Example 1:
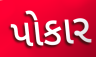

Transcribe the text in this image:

પોકાર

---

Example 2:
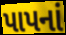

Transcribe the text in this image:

પાપનાં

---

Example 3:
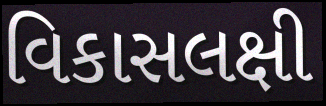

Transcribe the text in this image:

વિકાસલક્ષી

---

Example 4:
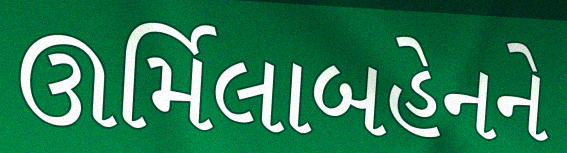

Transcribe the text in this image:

ઊર્મિલાબહેનને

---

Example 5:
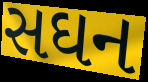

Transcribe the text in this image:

સઘન